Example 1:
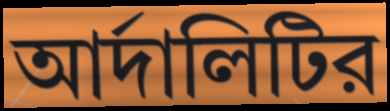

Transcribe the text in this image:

আর্দালিটির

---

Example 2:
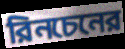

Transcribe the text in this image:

রিনচেনের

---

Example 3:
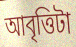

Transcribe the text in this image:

আবৃত্তিটা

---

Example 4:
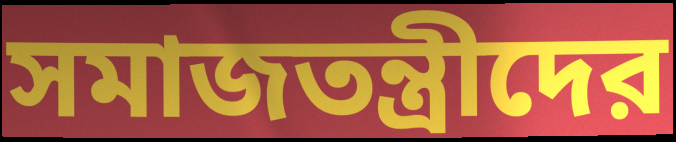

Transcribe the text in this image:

সমাজতন্ত্রীদের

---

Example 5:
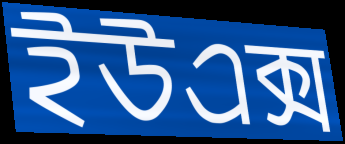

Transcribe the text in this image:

ইউএক্স